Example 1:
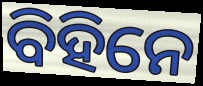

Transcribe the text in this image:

ବିହିନେ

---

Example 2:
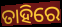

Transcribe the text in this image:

ତାହିରେ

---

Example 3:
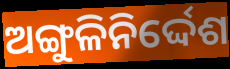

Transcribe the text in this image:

ଅଙ୍ଗୁଳିନିର୍ଦ୍ଦେଶ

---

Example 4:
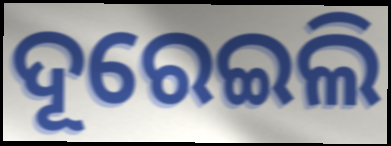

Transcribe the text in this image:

ଦୂରେଇଲି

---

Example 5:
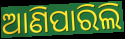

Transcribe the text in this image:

ଆଣିପାରିଲି